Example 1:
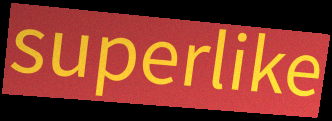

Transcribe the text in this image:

superlike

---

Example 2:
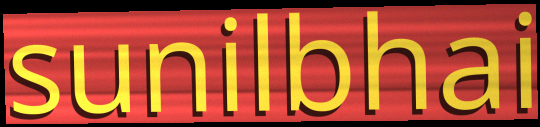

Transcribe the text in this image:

sunilbhai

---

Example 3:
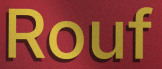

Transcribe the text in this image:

Rouf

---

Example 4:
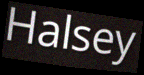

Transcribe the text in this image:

Halsey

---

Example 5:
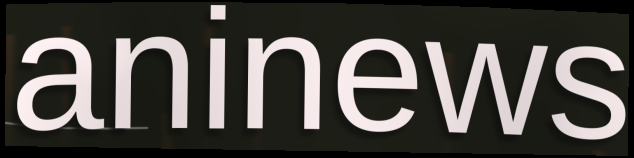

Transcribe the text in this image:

aninews